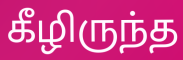
கீழிருந்த